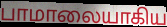
பாமாலையாகிய